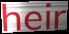
heir